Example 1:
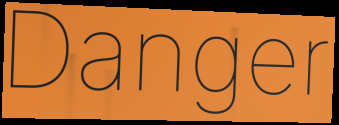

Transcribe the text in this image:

Danger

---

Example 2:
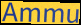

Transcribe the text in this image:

Ammu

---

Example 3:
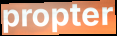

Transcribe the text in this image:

propter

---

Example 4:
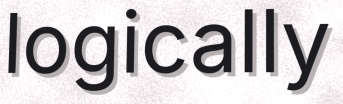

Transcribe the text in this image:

logically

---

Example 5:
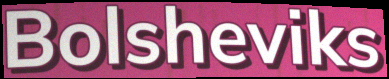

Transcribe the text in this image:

Bolsheviks